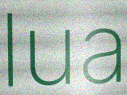
lua